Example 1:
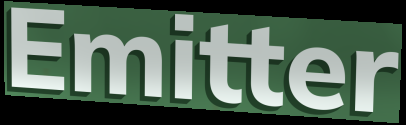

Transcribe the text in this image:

Emitter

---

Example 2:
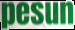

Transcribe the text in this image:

pesun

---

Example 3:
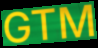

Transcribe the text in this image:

GTM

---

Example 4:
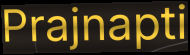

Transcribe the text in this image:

Prajnapti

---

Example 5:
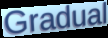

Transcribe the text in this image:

Gradual